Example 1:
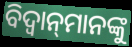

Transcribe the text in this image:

ବିଦ୍ଵାନ୍‌ମାନଙ୍କୁ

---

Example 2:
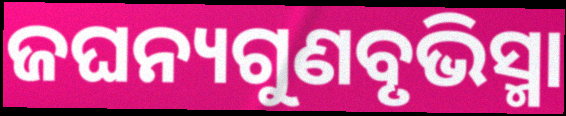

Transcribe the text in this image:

ଜଘନ୍ୟଗୁଣବୃଭିସ୍ମା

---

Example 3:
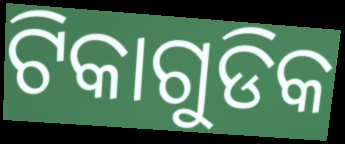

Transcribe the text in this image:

ଟିକାଗୁଡିକ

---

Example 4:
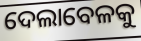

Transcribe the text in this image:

ଦେଲାବେଳକୁ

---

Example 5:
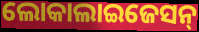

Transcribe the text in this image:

ଲୋକାଲାଇଜେସନ୍